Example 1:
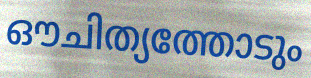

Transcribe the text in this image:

ഔചിത്യത്തോടും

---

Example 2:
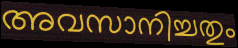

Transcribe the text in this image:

അവസാനിച്ചതും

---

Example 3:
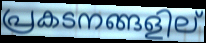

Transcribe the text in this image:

പ്രകടനങ്ങളില്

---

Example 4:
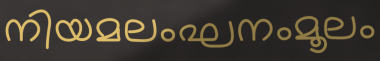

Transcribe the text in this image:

നിയമലംഘനംമൂലം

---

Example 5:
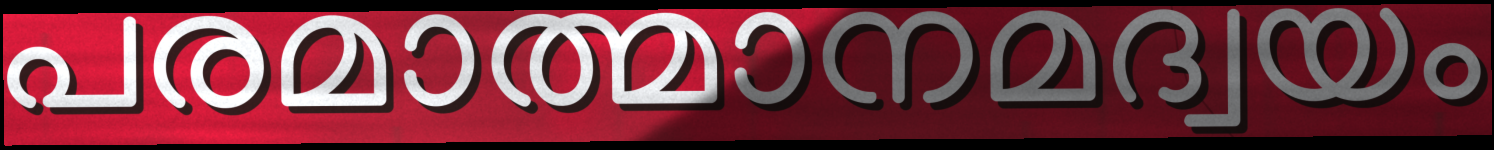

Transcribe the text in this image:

പരമാത്മാനമദ്വയം